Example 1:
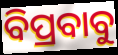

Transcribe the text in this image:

ବିପ୍ରବାବୁ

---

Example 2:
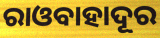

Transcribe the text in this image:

ରାଓବାହାଦୂର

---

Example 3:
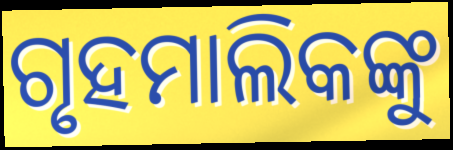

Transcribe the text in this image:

ଗୃହମାଲିକଙ୍କୁ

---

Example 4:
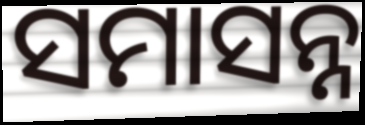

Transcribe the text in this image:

ସମାସନ୍ନ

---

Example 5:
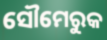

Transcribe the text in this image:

ସୌମେରୁକ